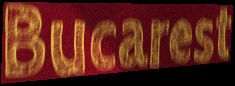
Bucarest